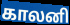
காலனி